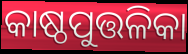
କାଷ୍ଠପୁତ୍ତଳିକା